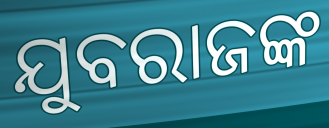
ଯୁବରାଜଙ୍କ